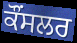
ਕੌੰਸਲਰ